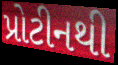
પ્રોટીનથી